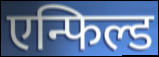
एन्फिल्ड